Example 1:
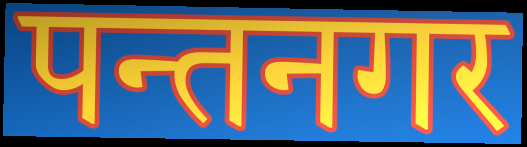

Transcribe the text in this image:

पन्तनगर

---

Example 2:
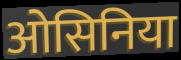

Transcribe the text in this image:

ओसिनिया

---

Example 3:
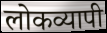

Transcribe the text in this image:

लोकव्यापी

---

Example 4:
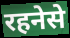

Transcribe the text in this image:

रहनेसे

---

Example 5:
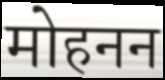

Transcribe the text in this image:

मोहनन